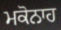
ਮਕੋਨਾਹ